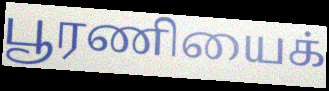
பூரணியைக்